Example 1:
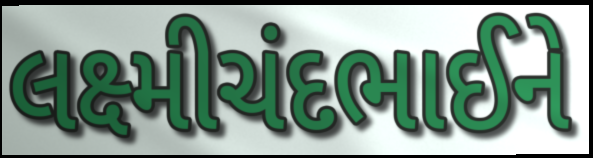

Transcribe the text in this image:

લક્ષ્મીચંદભાઈને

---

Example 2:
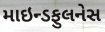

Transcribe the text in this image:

માઇન્ડફુલનેસ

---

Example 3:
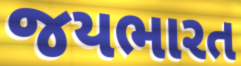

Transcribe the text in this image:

જયભારત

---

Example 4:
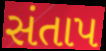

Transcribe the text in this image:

સંતાપ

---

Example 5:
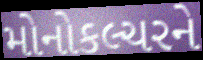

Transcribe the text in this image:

મોનોકલ્ચરને